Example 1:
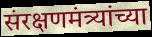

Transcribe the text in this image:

संरक्षणमंत्र्यांच्या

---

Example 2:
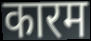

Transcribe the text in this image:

कारम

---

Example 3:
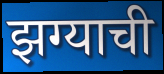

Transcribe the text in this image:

झग्याची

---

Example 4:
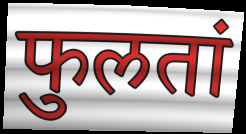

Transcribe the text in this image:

फुलतां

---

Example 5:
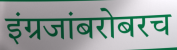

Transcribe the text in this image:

इंग्रजांबरोबरच